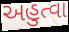
અહુત્વા